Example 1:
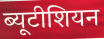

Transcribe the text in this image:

ब्यूटीशियन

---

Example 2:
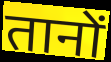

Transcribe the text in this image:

तानों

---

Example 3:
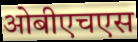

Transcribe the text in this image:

ओबीएचएस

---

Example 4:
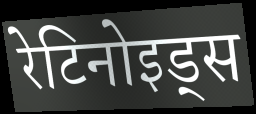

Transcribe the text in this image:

रेटिनोइड्स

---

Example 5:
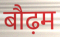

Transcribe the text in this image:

बौढ़म